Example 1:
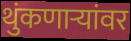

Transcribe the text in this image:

थुंकणाऱ्यांवर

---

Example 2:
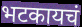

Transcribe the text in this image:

भटकायचं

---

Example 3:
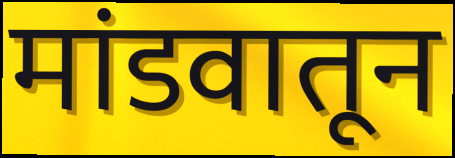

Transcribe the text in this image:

मांडवातून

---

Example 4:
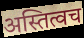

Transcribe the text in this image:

अस्तित्वच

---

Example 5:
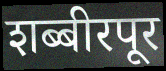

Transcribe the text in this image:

शब्बीरपूर